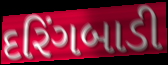
દરિંગબાડી